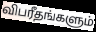
விபரீதங்களும்